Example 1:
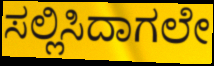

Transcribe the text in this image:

ಸಲ್ಲಿಸಿದಾಗಲೇ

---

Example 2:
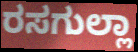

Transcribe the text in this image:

ರಸಗುಲ್ಲಾ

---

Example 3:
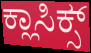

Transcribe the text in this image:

ಕ್ಲಾಸಿಕ್ಸ್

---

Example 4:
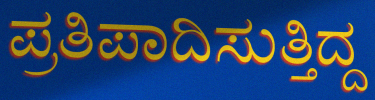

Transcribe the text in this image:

ಪ್ರತಿಪಾದಿಸುತ್ತಿದ್ದ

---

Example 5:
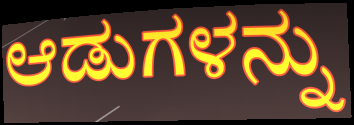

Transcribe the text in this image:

ಆಡುಗಳನ್ನು